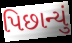
પિછાન્યું